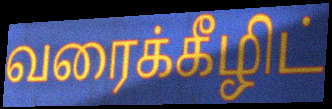
வரைக்கீழிட்